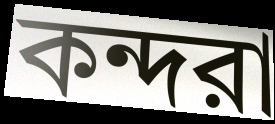
কন্দরা